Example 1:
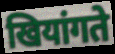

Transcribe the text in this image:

खियांगते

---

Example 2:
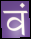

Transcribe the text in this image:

वं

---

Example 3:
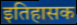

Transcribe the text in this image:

इतिहासक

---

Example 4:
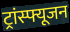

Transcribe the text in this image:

ट्रांस्फ्यूजन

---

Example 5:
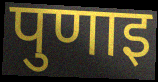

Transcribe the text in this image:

पुणाइ